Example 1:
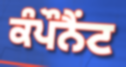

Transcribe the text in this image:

ਕੰਪੌਨੈਂਟ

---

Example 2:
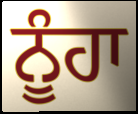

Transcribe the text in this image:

ਨੂੰਹਾ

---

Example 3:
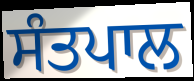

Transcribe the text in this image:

ਸੰਤਪਾਲ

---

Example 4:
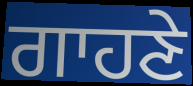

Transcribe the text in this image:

ਗਾਹਣੇ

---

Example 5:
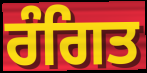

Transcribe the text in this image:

ਰੰਗਿਤ